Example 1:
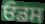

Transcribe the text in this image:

ਓਡਸ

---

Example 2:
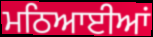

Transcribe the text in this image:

ਮਠਿਆਈਆਂ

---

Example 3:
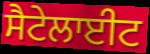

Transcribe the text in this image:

ਸੈਟੇਲਾਈਟ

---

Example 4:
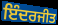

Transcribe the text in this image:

ਇੰਦਰਜੀਤ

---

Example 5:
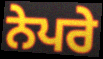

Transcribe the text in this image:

ਨੇਪਰੇ